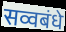
सव्वबंधे